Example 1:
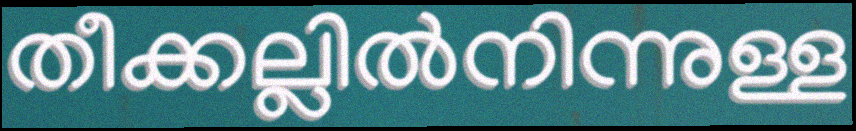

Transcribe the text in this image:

തീക്കല്ലിൽനിന്നുള്ള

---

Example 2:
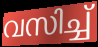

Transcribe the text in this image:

വസിച്ച്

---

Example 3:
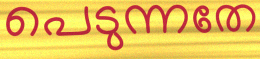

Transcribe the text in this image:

പെടുന്നതേ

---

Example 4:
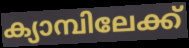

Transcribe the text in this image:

ക്യാമ്പിലേക്ക്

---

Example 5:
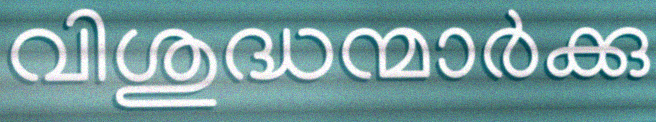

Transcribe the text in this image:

വിശുദ്ധന്മാർക്കു